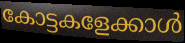
കോട്ടകളേക്കാൾ